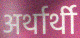
अर्थार्थी